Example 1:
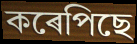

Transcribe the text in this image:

কৰেপিছে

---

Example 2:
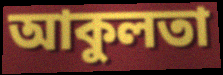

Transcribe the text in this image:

আকুলতা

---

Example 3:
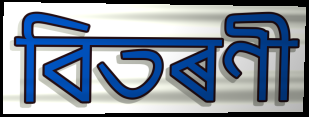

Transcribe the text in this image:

বিতৰণী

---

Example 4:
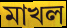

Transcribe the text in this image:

মাখল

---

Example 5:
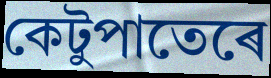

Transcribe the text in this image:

কেটুপাতেৰে